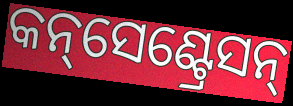
କନ୍‌ସେଣ୍ଟ୍ରେସନ୍